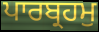
ਪਾਰਬ੍ਰਹਮੁ